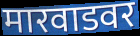
मारवाडवर